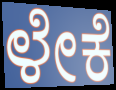
ಳೇಕೆ